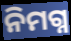
ନିମଗ୍ନ